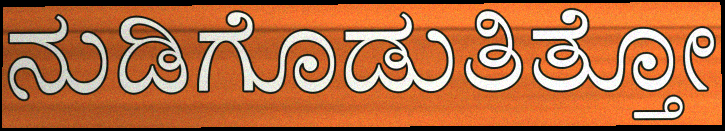
ನುಡಿಗೊಡುತಿತ್ತೋ